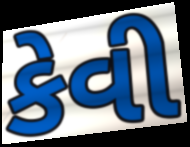
કેવી